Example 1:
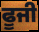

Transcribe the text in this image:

ਫੂਜੀ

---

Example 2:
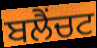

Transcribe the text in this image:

ਬਲੈਂਚਟ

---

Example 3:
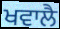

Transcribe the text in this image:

ਖਵਾਲੈ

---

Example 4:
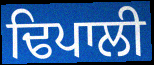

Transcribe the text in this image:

ਢਿਪਾਲੀ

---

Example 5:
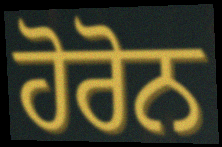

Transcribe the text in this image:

ਹੋਰੋਨ